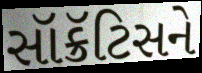
સૉક્રૅટિસને